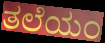
ತಲೆಯಂ